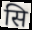
सि